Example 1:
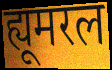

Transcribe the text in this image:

ह्यूमरल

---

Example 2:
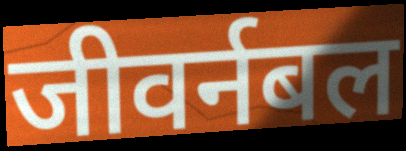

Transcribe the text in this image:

जीवर्नबल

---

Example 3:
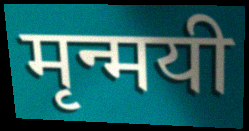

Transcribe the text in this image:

मृन्मयी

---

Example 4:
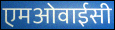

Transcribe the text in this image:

एमओवाईसी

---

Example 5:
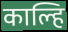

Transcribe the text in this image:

काल्हि